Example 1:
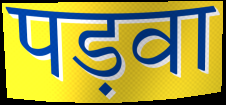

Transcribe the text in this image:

पड़वा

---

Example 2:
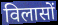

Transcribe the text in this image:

विलासों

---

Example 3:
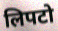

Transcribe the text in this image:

लिपटो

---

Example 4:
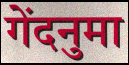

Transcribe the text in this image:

गेंदनुमा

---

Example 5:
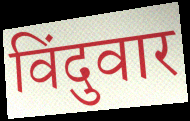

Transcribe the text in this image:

विंदुवार